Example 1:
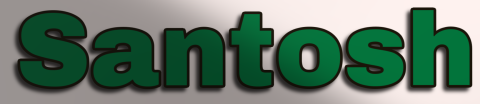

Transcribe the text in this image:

Santosh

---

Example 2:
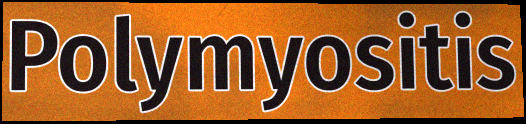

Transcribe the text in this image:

Polymyositis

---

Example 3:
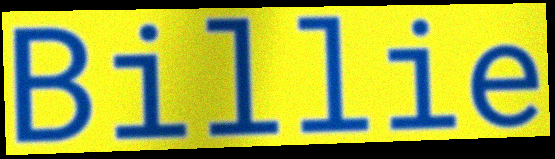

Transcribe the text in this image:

Billie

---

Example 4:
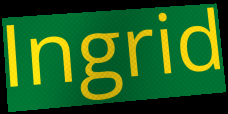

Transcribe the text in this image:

Ingrid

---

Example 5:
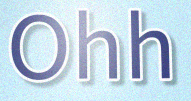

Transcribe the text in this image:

Ohh